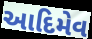
આદિમેવ